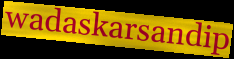
wadaskarsandip